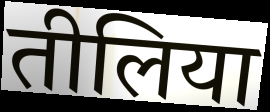
तीलिया